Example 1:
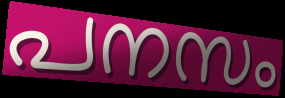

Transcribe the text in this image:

പനസം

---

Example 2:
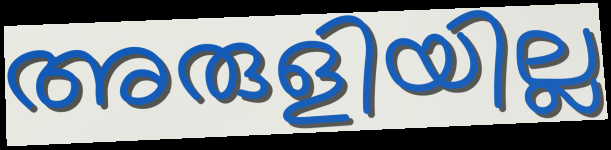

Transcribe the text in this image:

അരുളിയില്ല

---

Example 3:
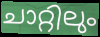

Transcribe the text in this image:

ചാറ്റിലും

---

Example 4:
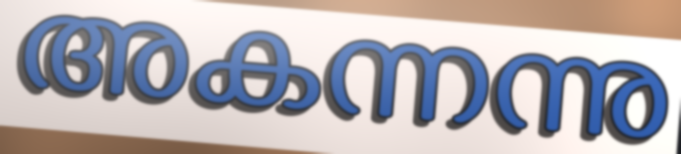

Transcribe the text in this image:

അകന്നന്നു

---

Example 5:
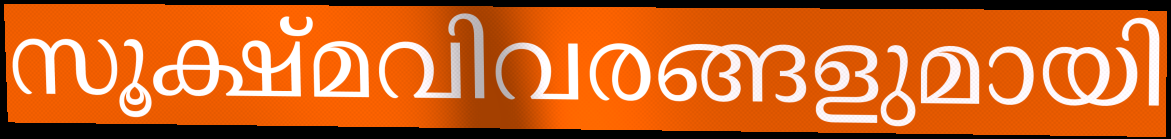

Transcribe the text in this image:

സൂക്ഷ്മവിവരങ്ങളുമായി